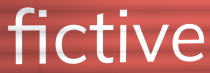
fictive